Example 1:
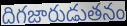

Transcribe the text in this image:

దిగజారుడుతనం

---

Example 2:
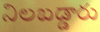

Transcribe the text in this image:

నిలబడ్డారు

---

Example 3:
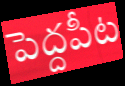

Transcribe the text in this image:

పెద్దపీట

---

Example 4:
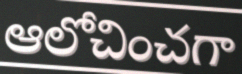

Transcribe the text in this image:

ఆలోచించగా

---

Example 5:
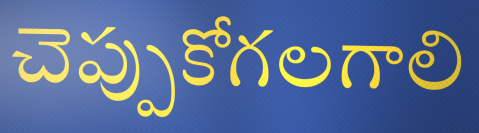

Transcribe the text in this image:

చెప్పుకోగలగాలి